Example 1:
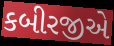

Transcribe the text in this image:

કબીરજીએ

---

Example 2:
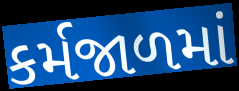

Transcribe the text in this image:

કર્મજાળમાં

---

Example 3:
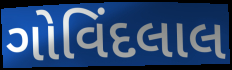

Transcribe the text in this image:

ગોવિંદલાલ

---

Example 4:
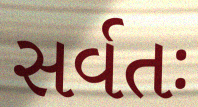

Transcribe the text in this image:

સર્વતઃ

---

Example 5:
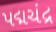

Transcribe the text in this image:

પદ્મચંદ્ર